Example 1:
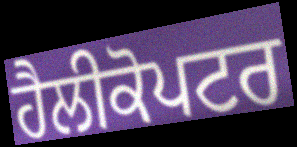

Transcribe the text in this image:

ਹੈਲੀਕੋਪਟਰ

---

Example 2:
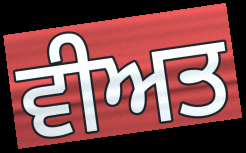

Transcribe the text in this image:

ਵੀਅਤ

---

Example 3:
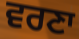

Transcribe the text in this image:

ਵਰਣਾ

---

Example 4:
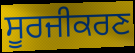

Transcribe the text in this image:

ਸੂਰਜੀਕਰਣ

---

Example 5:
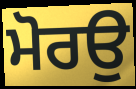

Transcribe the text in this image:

ਮੋਰਉ